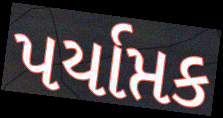
પર્યાપ્તક